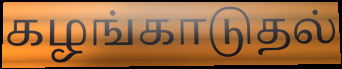
கழங்காடுதல்